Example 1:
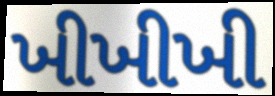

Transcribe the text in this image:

ખીખીખી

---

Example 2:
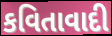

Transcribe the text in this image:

કવિતાવાદી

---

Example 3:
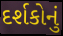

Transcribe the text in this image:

દર્શકોનું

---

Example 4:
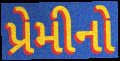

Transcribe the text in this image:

પ્રેમીનો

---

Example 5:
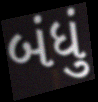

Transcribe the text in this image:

બંધું